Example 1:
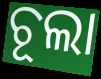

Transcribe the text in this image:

ଚୂଲା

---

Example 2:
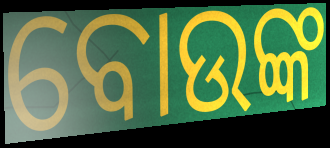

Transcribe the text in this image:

ବୋଉଙ୍କ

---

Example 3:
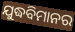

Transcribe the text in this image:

ଯୁଦ୍ଧବିମାନର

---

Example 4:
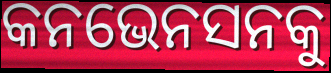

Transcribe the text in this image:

କନଭେନସନକୁ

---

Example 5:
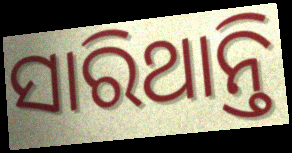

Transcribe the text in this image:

ସାରିଥାନ୍ତି